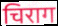
चिराग